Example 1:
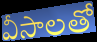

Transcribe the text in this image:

వీసాలతో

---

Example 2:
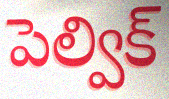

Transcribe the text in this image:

పెల్విక్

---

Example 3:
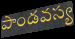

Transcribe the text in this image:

పాండవస్య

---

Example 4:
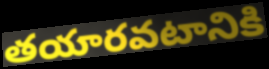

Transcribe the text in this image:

తయారవటానికి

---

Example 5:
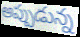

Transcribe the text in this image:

అప్పుడున్న